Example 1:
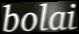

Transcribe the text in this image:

bolai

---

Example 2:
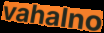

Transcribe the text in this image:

vahalno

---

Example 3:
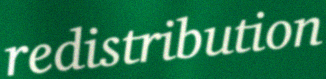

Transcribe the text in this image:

redistribution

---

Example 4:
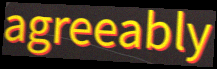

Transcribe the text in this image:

agreeably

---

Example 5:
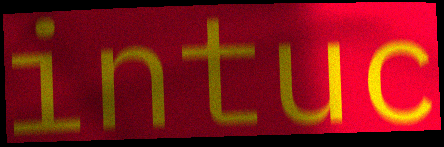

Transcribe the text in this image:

intuc